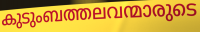
കുടുംബത്തലവന്മാരുടെ